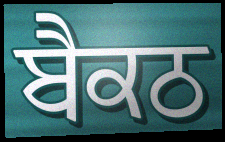
ਬੈਕਠ